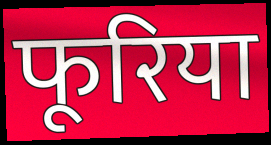
फूरिया